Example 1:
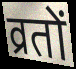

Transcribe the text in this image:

व्रतों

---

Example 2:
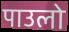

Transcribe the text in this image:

पाउलो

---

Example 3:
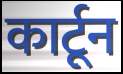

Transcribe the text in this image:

कार्टून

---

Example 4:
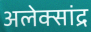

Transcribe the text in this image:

अलेक्सांद्र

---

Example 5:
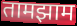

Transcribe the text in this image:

तामझाम